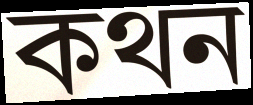
কথন